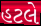
હટલે